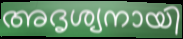
അദൃശ്യനായി